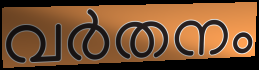
വർതനം